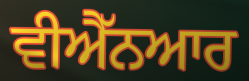
ਵੀਐੱਨਆਰ